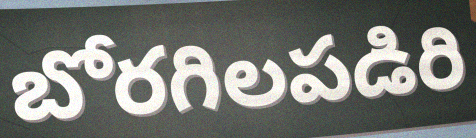
బోరగిలపడిరి